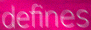
defines